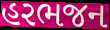
હરભજન